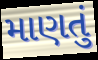
માણતું